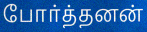
போர்த்தனன்